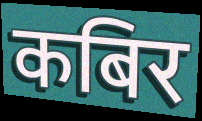
कबिर